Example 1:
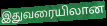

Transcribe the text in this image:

இதுவரையிலான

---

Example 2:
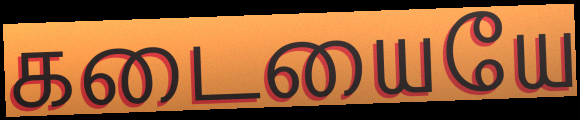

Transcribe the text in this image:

கடையையே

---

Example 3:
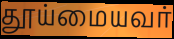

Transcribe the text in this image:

தூய்மையவர்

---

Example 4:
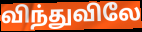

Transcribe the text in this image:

விந்துவிலே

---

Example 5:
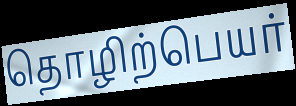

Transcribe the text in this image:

தொழிற்பெயர்